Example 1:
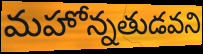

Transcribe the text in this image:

మహోన్నతుడవని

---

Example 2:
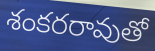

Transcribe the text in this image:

శంకరరావుతో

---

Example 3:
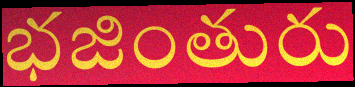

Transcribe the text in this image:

భజింతురు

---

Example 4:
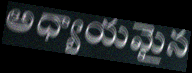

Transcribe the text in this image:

అధ్యాయమైన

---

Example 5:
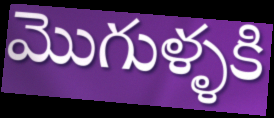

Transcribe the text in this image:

మొగుళ్ళకి